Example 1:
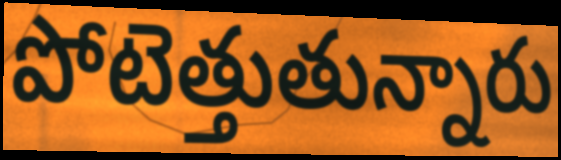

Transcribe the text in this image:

పోటెత్తుతున్నారు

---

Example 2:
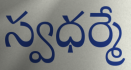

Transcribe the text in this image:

స్వధర్మే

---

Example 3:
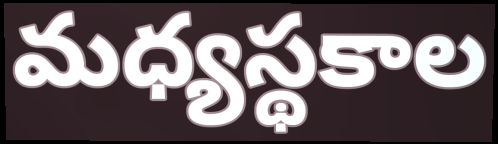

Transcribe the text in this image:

మధ్యస్థకాల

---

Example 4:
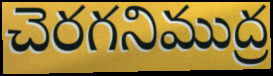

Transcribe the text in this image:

చెరగనిముద్ర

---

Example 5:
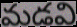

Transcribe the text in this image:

మడవి